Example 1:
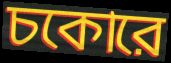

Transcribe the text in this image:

চকোরে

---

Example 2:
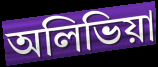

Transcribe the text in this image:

অলিভিয়া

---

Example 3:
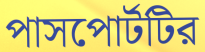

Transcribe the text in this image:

পাসপোর্টটির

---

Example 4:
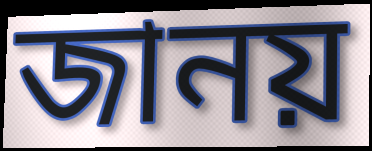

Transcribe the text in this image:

জানয়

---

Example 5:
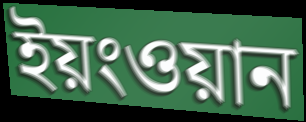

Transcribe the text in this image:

ইয়ংওয়ান